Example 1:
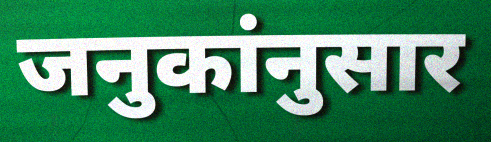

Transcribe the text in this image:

जनुकांनुसार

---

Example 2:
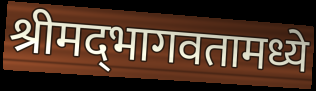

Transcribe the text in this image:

श्रीमद्‌भागवतामध्ये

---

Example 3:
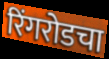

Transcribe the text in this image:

रिंगरोडचा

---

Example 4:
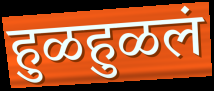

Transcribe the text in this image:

हुळहुळलं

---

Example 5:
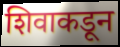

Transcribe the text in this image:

शिवाकडून